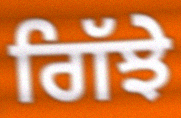
ਗਿੱਝੇ